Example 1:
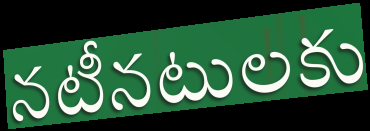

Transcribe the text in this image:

నటీనటులకు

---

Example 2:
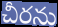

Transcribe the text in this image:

చీరను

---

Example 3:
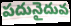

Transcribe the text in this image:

పదునైదువ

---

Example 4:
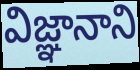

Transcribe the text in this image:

విజ్ఞానాని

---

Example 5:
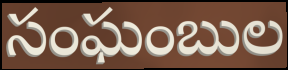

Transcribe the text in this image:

సంఘంబుల